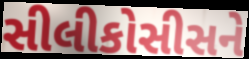
સીલીકોસીસને